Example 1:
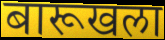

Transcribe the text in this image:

बारूखला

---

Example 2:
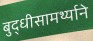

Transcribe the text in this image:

बुद्धीसामर्थ्याने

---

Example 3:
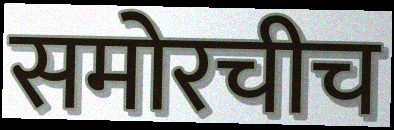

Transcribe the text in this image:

समोरचीच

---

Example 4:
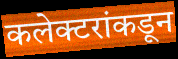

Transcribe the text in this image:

कलेक्टरांकडून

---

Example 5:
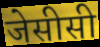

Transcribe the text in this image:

जेसीसी